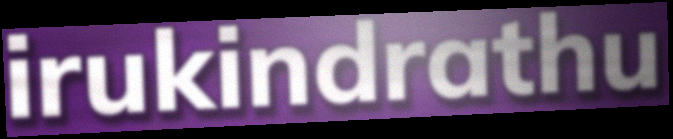
irukindrathu